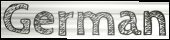
German